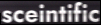
sceintific